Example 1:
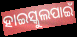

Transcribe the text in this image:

ହାଇସ୍କୁଲପାଇଁ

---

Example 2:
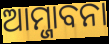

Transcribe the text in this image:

ଆମ୍ଜାବନା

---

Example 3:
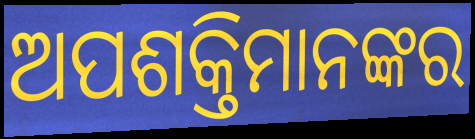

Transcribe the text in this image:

ଅପଶକ୍ତିମାନଙ୍କର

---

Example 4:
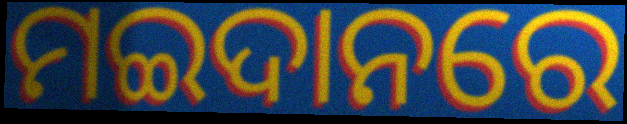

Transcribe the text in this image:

ମଇଦାନରେ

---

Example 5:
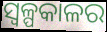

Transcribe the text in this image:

ସ୍ୱଳ୍ପକାଳର